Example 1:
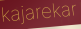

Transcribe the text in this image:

kajarekar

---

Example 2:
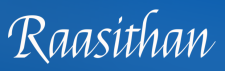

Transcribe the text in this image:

Raasithan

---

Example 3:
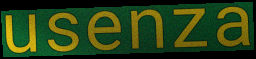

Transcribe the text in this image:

usenza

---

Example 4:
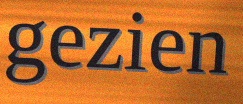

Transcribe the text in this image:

gezien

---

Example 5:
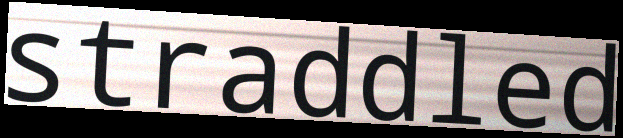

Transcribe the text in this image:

straddled